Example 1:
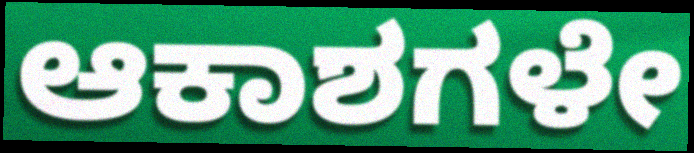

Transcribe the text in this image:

ಆಕಾಶಗಳೇ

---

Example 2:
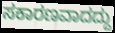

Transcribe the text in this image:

ಸಕಾರಣವಾದದ್ದು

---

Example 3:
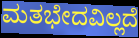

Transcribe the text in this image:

ಮತಭೇದವಿಲ್ಲದೆ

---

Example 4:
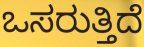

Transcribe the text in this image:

ಒಸರುತ್ತಿದೆ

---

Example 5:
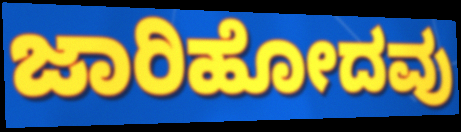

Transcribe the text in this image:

ಜಾರಿಹೋದವು